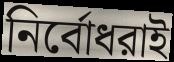
নির্বোধরাই